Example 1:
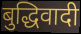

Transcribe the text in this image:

बुद्धिवादी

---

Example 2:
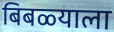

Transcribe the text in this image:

बिबळ्याला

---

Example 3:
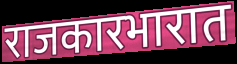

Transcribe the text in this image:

राजकारभारात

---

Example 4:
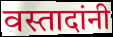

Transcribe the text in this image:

वस्तादांनी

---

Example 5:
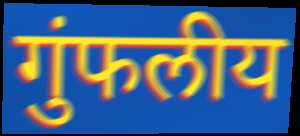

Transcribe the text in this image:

गुंफलीय